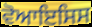
ਵੋਆਇਸਿਸ